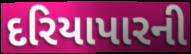
દરિયાપારની